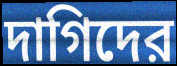
দাগিদের